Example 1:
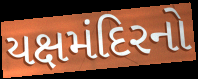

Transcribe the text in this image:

યક્ષમંદિરનો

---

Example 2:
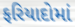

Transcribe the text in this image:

ફરિયાદોમાં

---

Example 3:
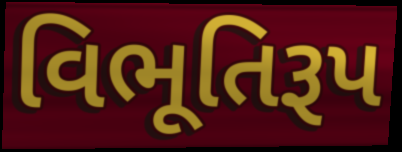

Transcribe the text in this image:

વિભૂતિરૂપ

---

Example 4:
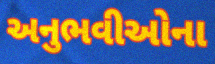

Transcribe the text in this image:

અનુભવીઓના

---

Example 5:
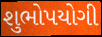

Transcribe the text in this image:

શુભોપયોગી